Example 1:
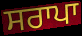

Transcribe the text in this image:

ਸਰਾਪਾ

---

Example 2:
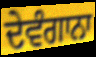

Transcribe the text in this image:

ਦੇਵੰਗਾਨਾ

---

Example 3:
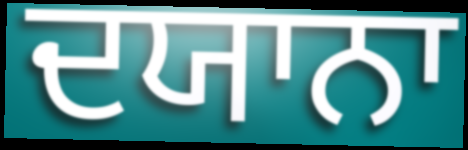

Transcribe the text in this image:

ਦਯਾਨਾ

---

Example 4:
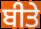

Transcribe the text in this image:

ਬੀਤੇ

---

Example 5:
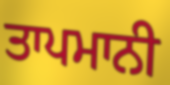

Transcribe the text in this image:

ਤਾਪਮਾਨੀ